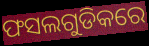
ଫସଲଗୁଡିକରେ